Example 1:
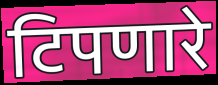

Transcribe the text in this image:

टिपणारे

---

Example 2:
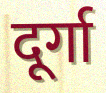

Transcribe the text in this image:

दूर्गा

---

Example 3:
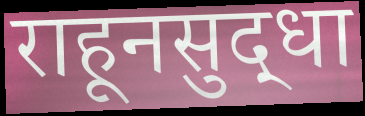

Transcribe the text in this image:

राहूनसुद्धा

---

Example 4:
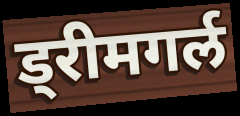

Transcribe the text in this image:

ड्रीमगर्ल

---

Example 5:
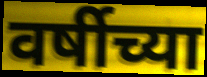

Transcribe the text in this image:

वर्षीच्या